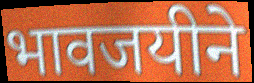
भावजयीने